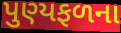
પુણ્યફળના